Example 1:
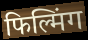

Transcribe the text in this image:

फिल्मिंग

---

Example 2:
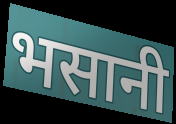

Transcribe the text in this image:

भसानी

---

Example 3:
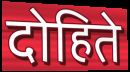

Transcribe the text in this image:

दोहिते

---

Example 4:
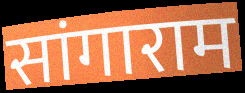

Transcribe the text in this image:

सांगाराम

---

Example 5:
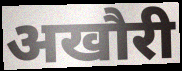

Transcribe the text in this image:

अखौरी